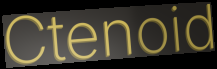
Ctenoid